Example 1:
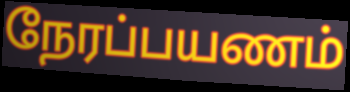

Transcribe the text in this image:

நேரப்பயணம்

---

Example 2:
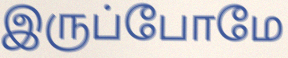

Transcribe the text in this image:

இருப்போமே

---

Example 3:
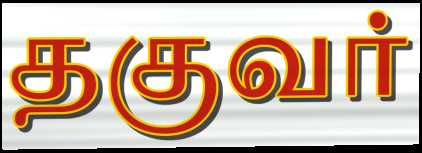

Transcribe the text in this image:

தகுவர்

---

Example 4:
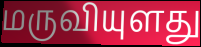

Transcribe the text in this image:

மருவியுளது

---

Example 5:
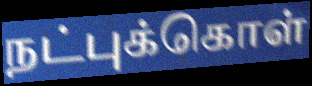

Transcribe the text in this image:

நட்புக்கொள்